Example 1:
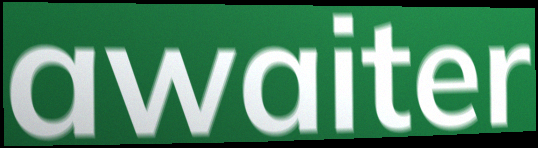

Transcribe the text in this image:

awaiter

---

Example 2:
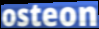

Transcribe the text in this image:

osteon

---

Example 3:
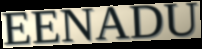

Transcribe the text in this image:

EENADU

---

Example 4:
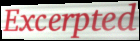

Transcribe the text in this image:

Excerpted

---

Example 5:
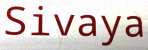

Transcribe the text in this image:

Sivaya